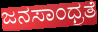
ಜನಸಾಂಧ್ರತೆ